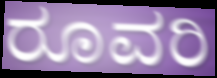
ರೂವರಿ